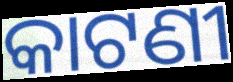
କାଟଣୀ